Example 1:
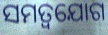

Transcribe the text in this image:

ସମତ୍ୱଯୋଗ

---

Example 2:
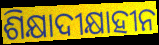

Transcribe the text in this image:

ଶିକ୍ଷାଦୀକ୍ଷାହୀନ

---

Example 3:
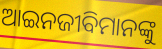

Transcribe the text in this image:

ଆଇନଜୀବିମାନଙ୍କୁ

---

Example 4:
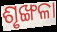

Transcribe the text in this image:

ଶୃଙ୍ଖଳା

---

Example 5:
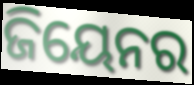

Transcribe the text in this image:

ଜିୟେନର